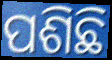
ପଶିଛି